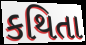
કથિતા